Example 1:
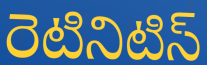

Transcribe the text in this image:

రెటినిటిస్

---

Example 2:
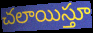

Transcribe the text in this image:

చలాయిస్తూ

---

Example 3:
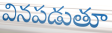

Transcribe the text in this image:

వినపడుతూ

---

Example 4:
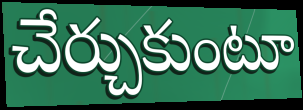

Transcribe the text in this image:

చేర్చుకుంటూ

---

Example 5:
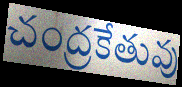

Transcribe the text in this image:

చంద్రకేతువు